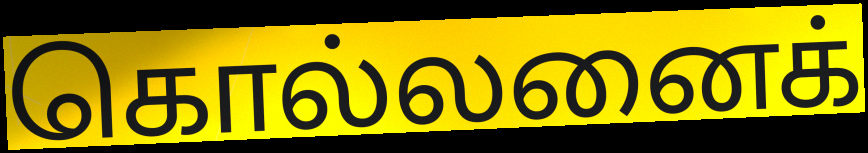
கொல்லனைக்